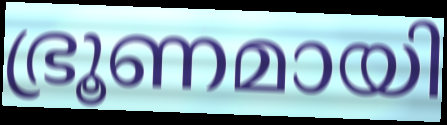
ഭ്രൂണമായി